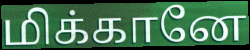
மிக்கானே